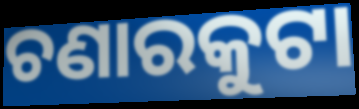
ଚଣାରକୁଟା